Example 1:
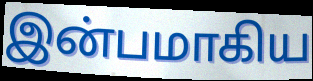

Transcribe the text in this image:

இன்பமாகிய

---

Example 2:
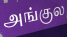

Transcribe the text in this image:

அங்குல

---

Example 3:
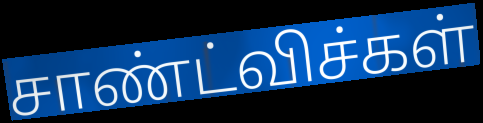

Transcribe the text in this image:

சாண்ட்விச்கள்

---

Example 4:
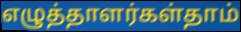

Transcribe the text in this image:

எழுத்தாளர்கள்தாம்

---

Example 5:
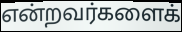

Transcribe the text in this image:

என்றவர்களைக்